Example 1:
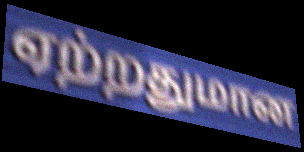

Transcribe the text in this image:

ஏற்றதுமான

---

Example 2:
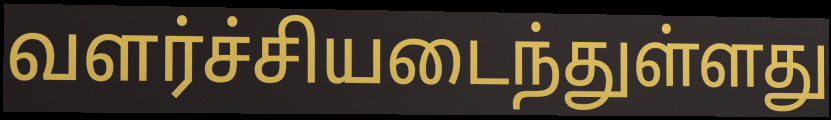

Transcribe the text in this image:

வளர்ச்சியடைந்துள்ளது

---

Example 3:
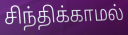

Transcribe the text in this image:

சிந்திக்காமல்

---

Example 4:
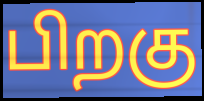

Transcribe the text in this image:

பிறகு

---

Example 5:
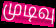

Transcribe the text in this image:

முடிவு